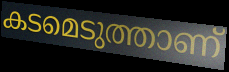
കടമെടുത്താണ്